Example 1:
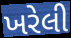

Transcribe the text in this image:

ખરેલી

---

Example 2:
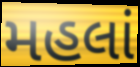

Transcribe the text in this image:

મહલાં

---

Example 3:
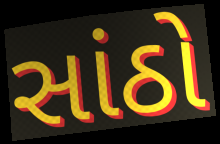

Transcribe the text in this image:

સાંઠો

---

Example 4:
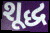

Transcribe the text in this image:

શૂદ્ધ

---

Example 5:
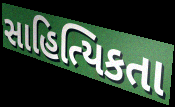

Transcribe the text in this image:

સાહિત્યિકતા